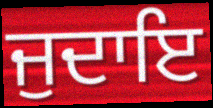
ਜੁਦਾਇ